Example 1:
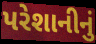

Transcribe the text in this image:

પરેશાનીનું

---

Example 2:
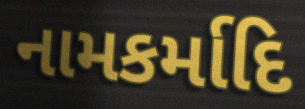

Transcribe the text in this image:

નામકર્માદિ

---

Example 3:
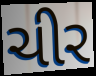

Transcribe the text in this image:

ચીર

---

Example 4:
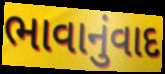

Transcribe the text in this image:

ભાવાનુંવાદ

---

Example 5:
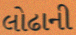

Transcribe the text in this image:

લોઢાની